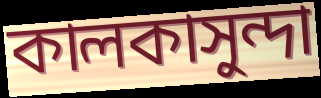
কালকাসুন্দা